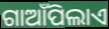
ଗାଆଁପିଲାଏ